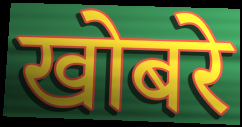
खोबरे